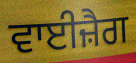
ਵਾਈਜ਼ੈਗ